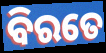
ବିରତେ